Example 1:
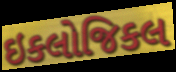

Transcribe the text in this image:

ઇકલોજિકલ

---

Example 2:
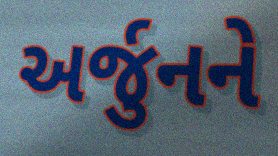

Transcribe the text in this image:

અર્જુનને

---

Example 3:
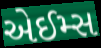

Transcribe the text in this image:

એઈમ્સ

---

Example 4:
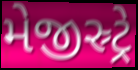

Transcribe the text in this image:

મેજીસ્ર્ટ્રે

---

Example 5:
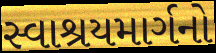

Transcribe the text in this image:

સ્વાશ્રયમાર્ગનો